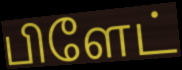
பிளேட்